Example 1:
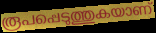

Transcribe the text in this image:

രൂപപ്പെടുത്തുകയാണ്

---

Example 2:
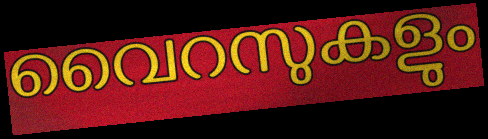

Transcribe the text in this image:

വൈറസുകളും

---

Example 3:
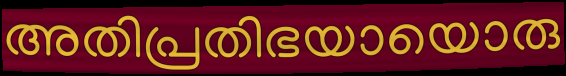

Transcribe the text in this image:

അതിപ്രതിഭയായൊരു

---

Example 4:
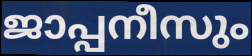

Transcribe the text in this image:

ജാപ്പനീസും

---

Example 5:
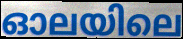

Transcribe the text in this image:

ഓലയിലെ